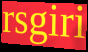
rsgiri